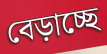
বেড়াচ্ছে